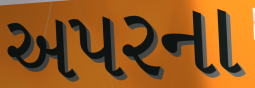
અપરના